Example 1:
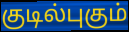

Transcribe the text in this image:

குடில்புகும்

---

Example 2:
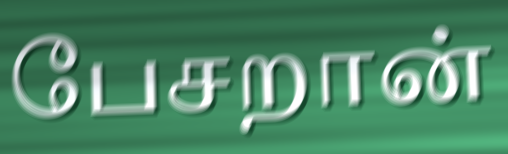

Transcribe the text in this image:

பேசறான்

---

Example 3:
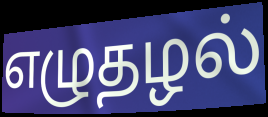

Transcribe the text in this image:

எழுதழல்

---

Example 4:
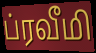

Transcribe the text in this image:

ப்ரவீமி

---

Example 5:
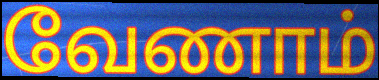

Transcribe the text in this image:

வேணாம்